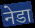
नेडा